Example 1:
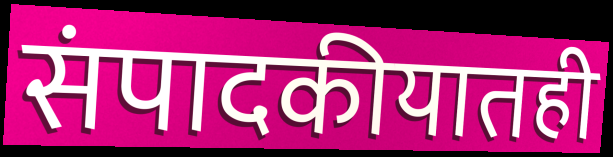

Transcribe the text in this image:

संपादकीयातही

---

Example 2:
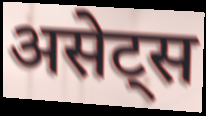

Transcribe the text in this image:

असेट्स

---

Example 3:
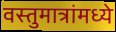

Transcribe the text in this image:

वस्तुमात्रांमध्ये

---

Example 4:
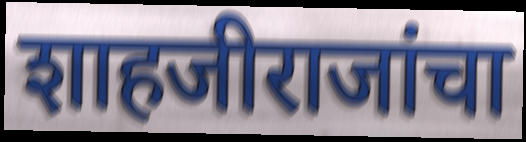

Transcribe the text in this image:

शाहजीराजांचा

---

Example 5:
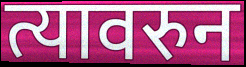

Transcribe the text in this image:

त्यावरुन